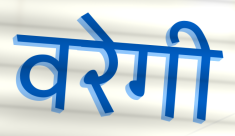
वरेगी